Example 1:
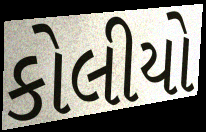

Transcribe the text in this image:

કોલીયો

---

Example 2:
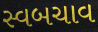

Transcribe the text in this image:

સ્વબચાવ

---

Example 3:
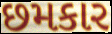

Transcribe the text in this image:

છમકાર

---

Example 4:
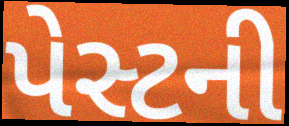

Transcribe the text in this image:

પેસ્ટની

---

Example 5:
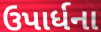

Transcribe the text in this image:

ઉપાર્ધના